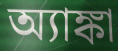
অ্যাঙ্কা